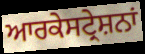
ਆਰਕੇਸਟ੍ਰੇਸ਼ਨਾਂ